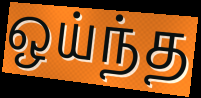
ஒய்ந்த